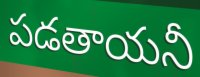
పడతాయనీ